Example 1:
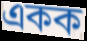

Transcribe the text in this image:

একক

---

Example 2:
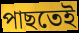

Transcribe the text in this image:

পাছতেই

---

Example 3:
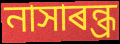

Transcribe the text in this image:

নাসাৰন্ধ্ৰ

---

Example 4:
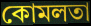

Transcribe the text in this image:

কোমলতা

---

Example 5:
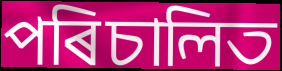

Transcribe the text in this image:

পৰিচালিত